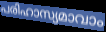
പരിഹാസ്യമാവാം